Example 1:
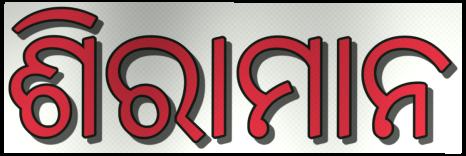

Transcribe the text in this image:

ଶିରାମାନ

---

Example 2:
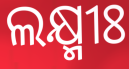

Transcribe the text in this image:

ଲକ୍ଷ୍ମୀଃ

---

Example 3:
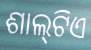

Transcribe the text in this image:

ଶାଲ୍‌ଟିଏ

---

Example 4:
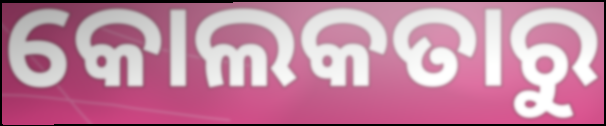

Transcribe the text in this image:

କୋଲକତାରୁ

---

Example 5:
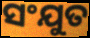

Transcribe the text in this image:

ସଂଯୁତ